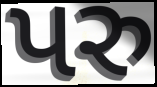
પરુ